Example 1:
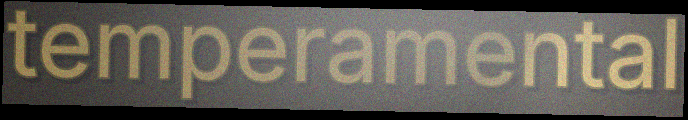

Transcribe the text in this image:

temperamental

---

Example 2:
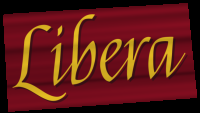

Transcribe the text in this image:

Libera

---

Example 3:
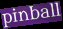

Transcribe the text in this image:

pinball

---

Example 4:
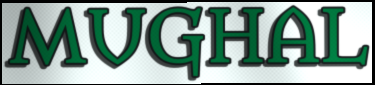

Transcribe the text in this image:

MUGHAL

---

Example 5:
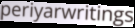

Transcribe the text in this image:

periyarwritings